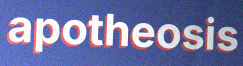
apotheosis